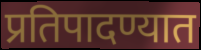
प्रतिपादण्यात